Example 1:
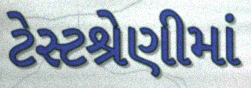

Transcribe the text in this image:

ટેસ્ટશ્રેણીમાં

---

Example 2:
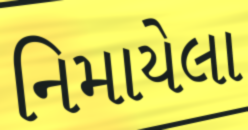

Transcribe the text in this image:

નિમાયેલા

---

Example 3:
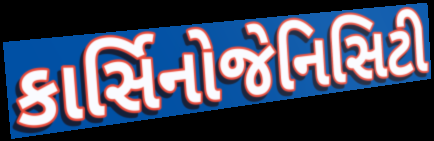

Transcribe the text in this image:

કાર્સિનોજેનિસિટી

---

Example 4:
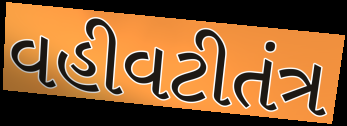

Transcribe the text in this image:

વહીવટીતંત્ર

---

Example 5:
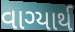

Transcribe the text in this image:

વાગ્યાર્થ